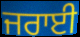
ਜਰਾਈ